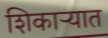
शिकाऱ्यात